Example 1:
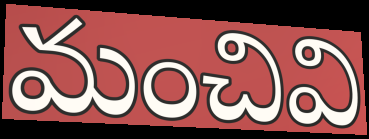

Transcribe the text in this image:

మంచివి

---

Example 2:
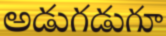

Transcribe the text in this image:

అడుగడుగూ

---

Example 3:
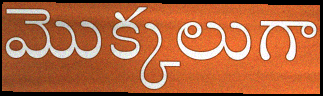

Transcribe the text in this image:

మొక్కలుగా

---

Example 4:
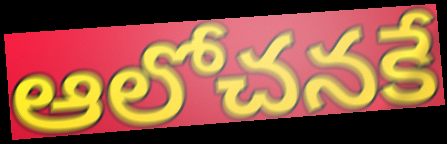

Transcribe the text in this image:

ఆలోచనకే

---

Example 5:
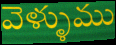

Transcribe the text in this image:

వెళ్ళుము